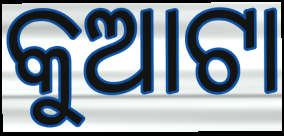
କୁଆଟା